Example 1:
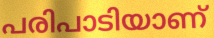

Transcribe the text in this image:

പരിപാടിയാണ്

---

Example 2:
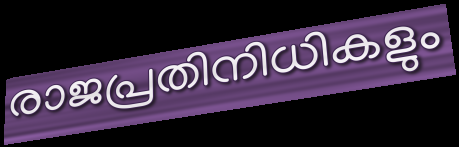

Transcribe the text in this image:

രാജപ്രതിനിധികളും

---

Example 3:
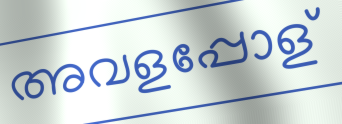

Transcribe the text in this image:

അവളപ്പോള്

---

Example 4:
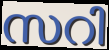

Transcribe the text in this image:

സറി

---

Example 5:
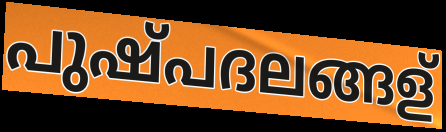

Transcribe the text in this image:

പുഷ്പദലങ്ങള്